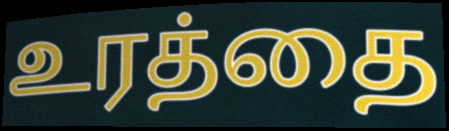
உரத்தை